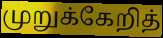
முறுக்கேறித்